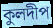
কুলদীপ